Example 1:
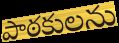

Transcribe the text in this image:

పాఠకులను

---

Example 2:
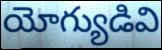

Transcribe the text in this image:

యోగ్యుడివి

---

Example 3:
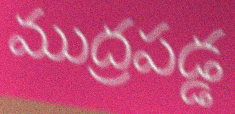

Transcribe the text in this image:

ముద్రపడ్డ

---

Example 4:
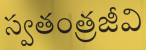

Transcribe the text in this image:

స్వతంత్రజీవి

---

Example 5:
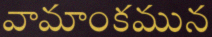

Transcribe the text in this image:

వామాంకమున